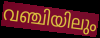
വഞ്ചിയിലും